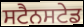
ਸਟੈਨਸਟੇਡ